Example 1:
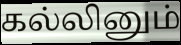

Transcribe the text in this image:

கல்லினும்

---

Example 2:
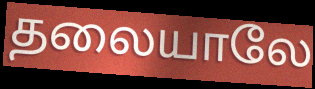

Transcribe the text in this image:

தலையாலே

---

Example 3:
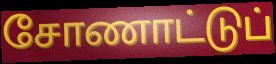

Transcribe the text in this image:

சோணாட்டுப்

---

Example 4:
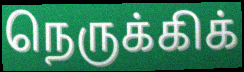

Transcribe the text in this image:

நெருக்கிக்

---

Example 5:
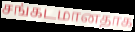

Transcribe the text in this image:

சங்கடமானதாக